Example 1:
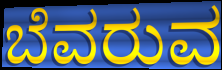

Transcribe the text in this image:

ಬೆವರುವ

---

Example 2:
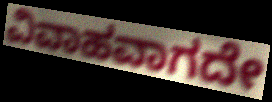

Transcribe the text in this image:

ವಿವಾಹವಾಗದೇ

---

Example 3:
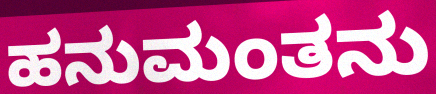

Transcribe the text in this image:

ಹನುಮಂತನು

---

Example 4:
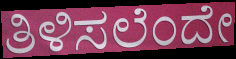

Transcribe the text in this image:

ತಿಳಿಸಲೆಂದೇ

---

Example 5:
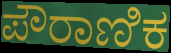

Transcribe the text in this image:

ಪೌರಾಣಿಕ